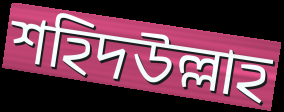
শহিদউল্লাহ